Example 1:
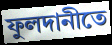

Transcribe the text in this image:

ফুলদানীতে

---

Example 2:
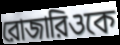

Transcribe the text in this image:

রোজারিওকে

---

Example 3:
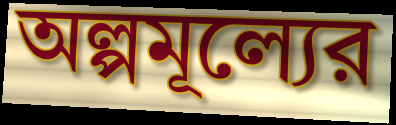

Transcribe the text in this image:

অল্পমূল্যের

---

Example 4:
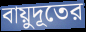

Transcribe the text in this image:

বায়ুদূতের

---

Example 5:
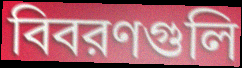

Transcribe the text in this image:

বিবরণগুলি